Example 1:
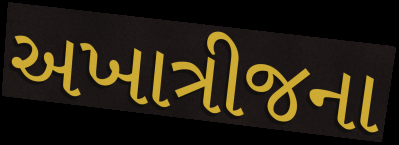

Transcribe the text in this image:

અખાત્રીજના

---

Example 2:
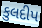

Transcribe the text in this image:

કુલદીપ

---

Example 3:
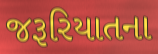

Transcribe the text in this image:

જરૂરિયાતના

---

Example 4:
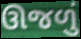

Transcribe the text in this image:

ઊજળું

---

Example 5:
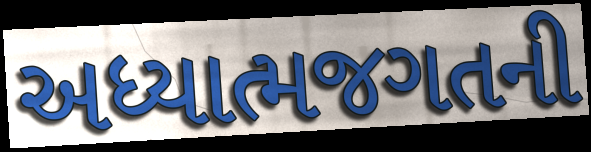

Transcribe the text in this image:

અધ્યાત્મજગતની